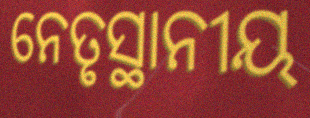
ନେତୃସ୍ଥାନୀୟ